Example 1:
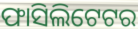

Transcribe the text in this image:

ଫାସିଲିଟେଟର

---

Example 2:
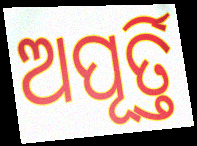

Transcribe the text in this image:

ଅପୂର୍ତ୍ତି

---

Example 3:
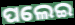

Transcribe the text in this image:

ପଲେଇ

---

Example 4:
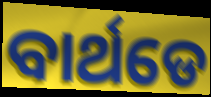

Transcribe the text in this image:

ବାର୍ଥଡେ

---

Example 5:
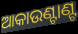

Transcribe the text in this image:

ଆକାଉଣ୍ଟାଣ୍ଟ